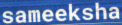
sameeksha